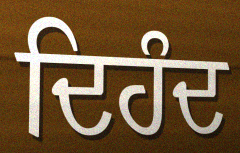
ਦਿਹੰਦ